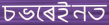
চভৰেইনত